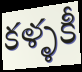
కళ్ళకీ